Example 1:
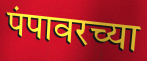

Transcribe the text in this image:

पंपावरच्या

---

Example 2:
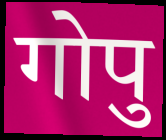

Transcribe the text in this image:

गोपु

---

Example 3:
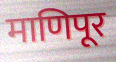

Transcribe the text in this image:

माणिपूर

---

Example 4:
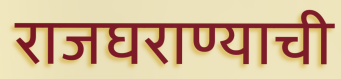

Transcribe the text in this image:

राजघराण्याची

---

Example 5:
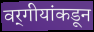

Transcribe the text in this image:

वर्गीयांकडून